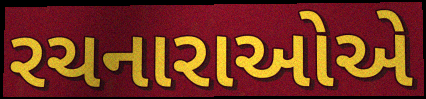
રચનારાઓએ